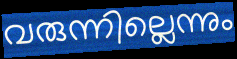
വരുന്നില്ലെന്നും